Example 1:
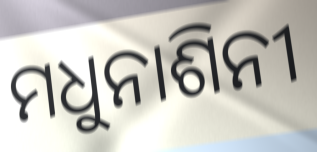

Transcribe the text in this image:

ମଧୁନାଶିନୀ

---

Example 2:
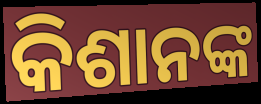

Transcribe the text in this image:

କିଶାନଙ୍କ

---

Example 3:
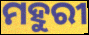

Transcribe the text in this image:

ମହୁରୀ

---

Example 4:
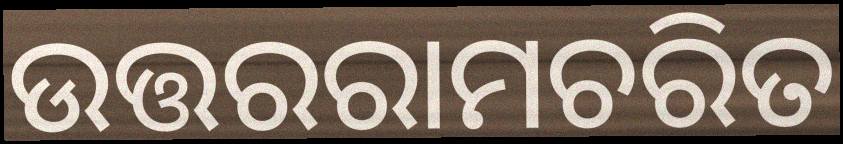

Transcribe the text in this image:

ଉତ୍ତରରାମଚରିତ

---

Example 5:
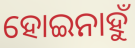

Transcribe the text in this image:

ହୋଇନାହୁଁ